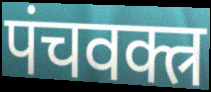
पंचवक्त्र